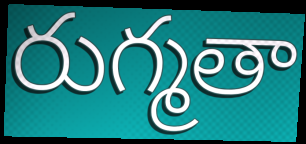
రుగ్మతా